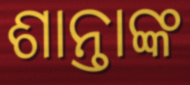
ଶାନ୍ତାଙ୍କ